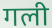
गली